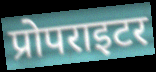
प्रोपराइटर